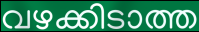
വഴക്കിടാത്ത